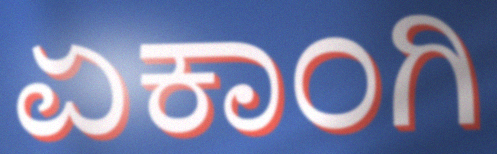
ಏಕಾಂಗಿ